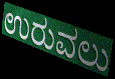
ಉರುವಲು